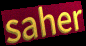
saher